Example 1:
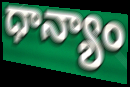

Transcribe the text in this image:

ధాన్యాం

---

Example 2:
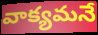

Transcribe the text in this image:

వాక్యమనే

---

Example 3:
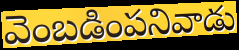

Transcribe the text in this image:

వెంబడింపనివాడు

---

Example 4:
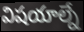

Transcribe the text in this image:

విషయాల్నే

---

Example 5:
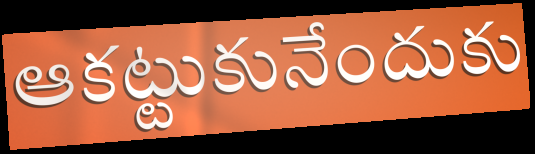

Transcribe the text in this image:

ఆకట్టుకునేందుకు